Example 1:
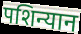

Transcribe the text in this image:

पशिन्यान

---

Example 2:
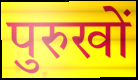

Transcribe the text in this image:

पुरुखों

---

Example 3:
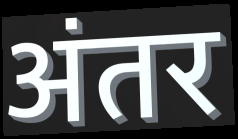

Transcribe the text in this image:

अंतर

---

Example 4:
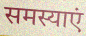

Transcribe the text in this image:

समस्याएं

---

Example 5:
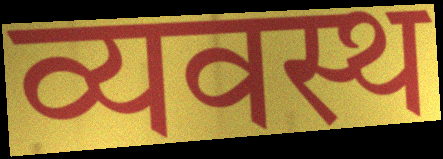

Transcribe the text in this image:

व्यवस्थ